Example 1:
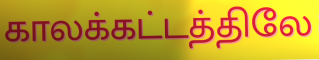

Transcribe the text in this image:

காலக்கட்டத்திலே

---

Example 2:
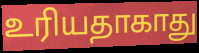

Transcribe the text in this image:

உரியதாகாது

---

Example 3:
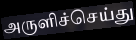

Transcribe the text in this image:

அருளிச்செய்து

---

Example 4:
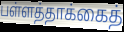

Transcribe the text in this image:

பள்ளத்தாக்கைத்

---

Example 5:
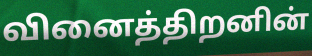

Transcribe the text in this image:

வினைத்திறனின்